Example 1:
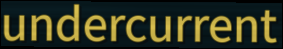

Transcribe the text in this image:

undercurrent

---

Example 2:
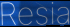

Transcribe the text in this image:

Resia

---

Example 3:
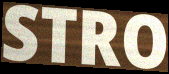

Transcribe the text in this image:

STRO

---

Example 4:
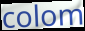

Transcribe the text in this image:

colom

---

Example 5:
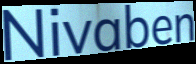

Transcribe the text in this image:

Nivaben